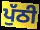
ਪੁੱਠੀ